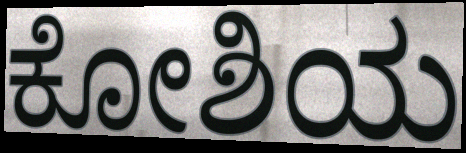
ಕೋಶಿಯ